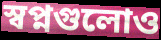
স্বপ্নগুলোও